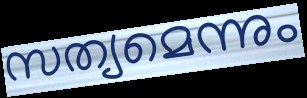
സത്യമെന്നും